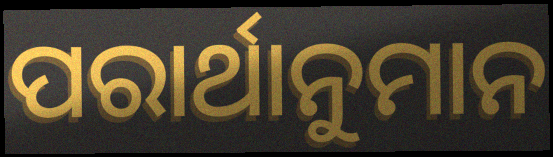
ପରାର୍ଥାନୁମାନ